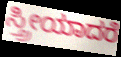
ಸ್ತ್ರೀಯಾದರೆ